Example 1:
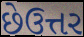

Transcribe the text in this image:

છેઉત્તર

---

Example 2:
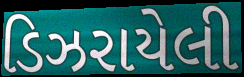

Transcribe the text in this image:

ડિઝરાયેલી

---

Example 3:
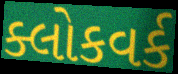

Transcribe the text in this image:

ક્લોકવર્ક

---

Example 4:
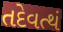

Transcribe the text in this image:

તદેવત્થં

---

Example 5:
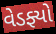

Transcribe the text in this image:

વેડફ્યો